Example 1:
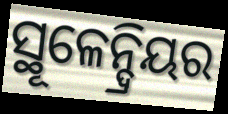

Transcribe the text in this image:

ସ୍ଥୂଳେନ୍ଦ୍ରିୟର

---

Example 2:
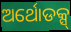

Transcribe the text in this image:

ଅର୍ଥୋଡକ୍ସ୍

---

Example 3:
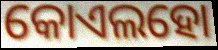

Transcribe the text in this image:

କୋଏଲହୋ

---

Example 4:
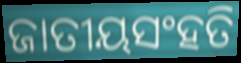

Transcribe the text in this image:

ଜାତୀୟସଂହତି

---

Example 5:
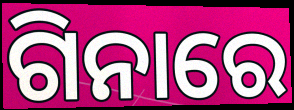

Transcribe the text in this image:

ଗିନାରେ